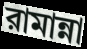
রামান্না